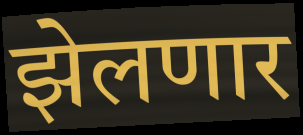
झेलणार